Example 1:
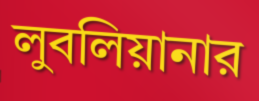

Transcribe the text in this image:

লুবলিয়ানার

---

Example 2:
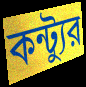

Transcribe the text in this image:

কন্ট্যুর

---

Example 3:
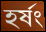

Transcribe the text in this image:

হর্ষং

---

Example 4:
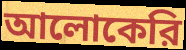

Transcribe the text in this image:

আলোকেরি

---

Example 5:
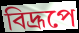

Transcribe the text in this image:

বিদ্রূপে